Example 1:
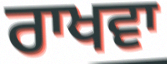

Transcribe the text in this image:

ਰਾਖਵਾ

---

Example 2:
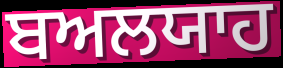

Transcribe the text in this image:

ਬਅਲਯਾਹ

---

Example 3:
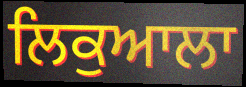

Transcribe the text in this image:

ਲਿਕੁਆਲਾ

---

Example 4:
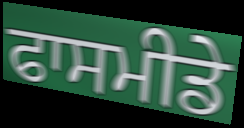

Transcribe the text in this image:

ਫਾਸਮੀਡੇ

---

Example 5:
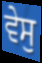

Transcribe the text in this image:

ਵੇਸੁ